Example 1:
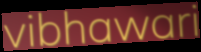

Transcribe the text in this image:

vibhawari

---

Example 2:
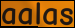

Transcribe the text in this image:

aalas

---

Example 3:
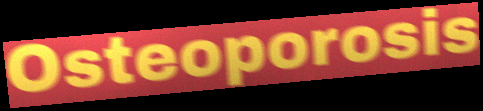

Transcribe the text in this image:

Osteoporosis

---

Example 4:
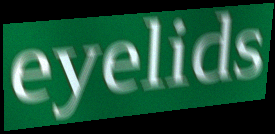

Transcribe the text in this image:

eyelids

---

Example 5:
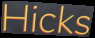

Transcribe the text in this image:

Hicks